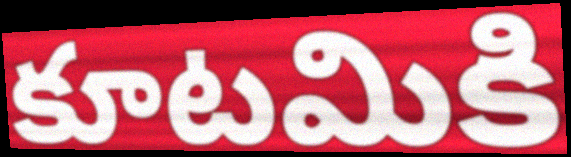
కూటమికి